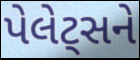
પેલેટ્સને